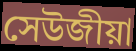
সেউজীয়া